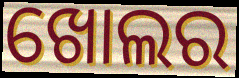
ଖୋଲର